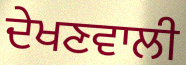
ਦੇਖਣਵਾਲੀ